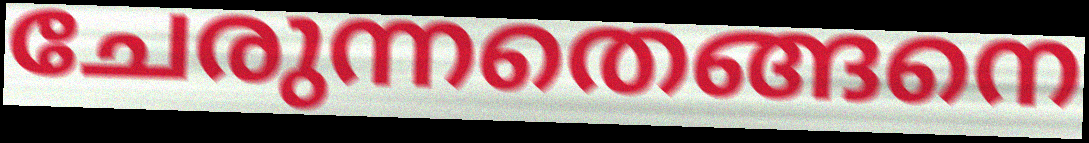
ചേരുന്നതെങ്ങനെ